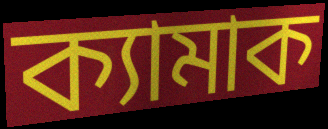
ক্যামাক